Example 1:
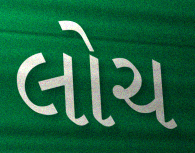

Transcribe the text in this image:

લોચ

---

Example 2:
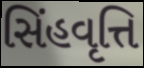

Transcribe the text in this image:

સિંહવૃત્તિ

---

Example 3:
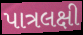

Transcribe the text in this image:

પાત્રલક્ષી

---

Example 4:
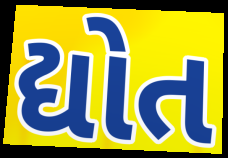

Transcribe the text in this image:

દ્યોત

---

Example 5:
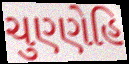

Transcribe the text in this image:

ચુણ્ણેહિ